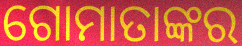
ଗୋମାତାଙ୍କର